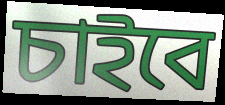
চাইবে